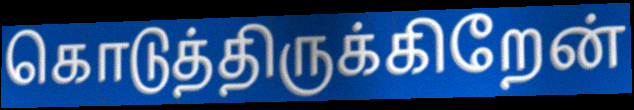
கொடுத்திருக்கிறேன்